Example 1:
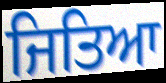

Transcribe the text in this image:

ਜਿਤਿਆ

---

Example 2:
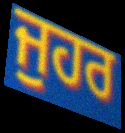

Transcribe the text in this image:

ਜੁਹਰ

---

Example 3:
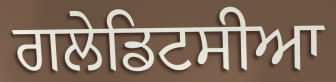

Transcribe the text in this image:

ਗਲੇਡਿਟਸੀਆ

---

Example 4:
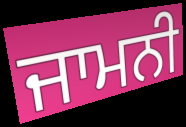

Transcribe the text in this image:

ਜਾਮਨੀ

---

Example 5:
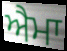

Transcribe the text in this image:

ਐਮਾ